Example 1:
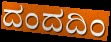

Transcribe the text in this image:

ದಂದದಿಂ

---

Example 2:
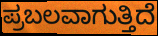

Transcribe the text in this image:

ಪ್ರಬಲವಾಗುತ್ತಿದೆ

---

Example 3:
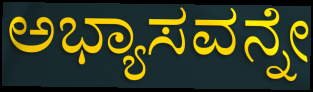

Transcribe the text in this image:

ಅಭ್ಯಾಸವನ್ನೇ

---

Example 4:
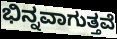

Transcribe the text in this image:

ಭಿನ್ನವಾಗುತ್ತವೆ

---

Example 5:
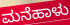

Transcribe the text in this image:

ಮನೆಹಾಳು